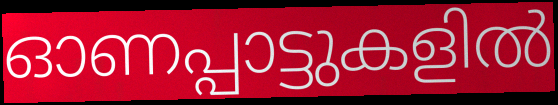
ഓണപ്പാട്ടുകളിൽ